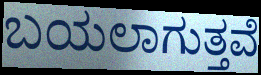
ಬಯಲಾಗುತ್ತವೆ